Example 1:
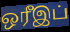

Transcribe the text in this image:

ஒரீஇப்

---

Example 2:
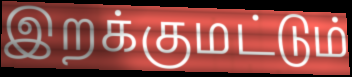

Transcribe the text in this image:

இறக்குமட்டும்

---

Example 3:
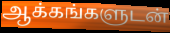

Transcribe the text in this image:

ஆக்கங்களுடன்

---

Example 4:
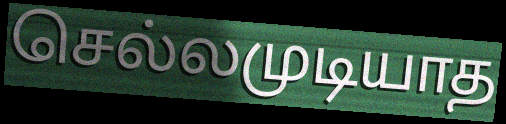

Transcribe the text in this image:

செல்லமுடியாத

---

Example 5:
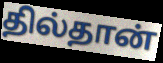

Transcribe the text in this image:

தில்தான்